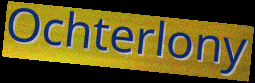
Ochterlony